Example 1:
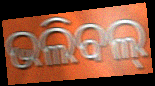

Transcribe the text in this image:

ଭଲିବଲ୍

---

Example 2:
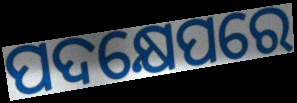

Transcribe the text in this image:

ପଦକ୍ଷେପରେ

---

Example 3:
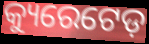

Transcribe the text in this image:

କ୍ୟୁରେଟେଡ଼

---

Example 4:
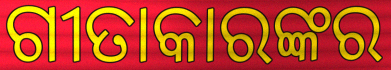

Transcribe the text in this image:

ଗୀତାକାରଙ୍କର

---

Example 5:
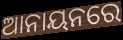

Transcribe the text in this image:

ଆନାୟନରେ